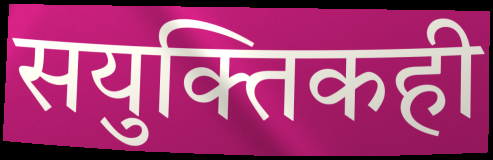
सयुक्तिकही